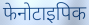
फेनोटाइपिक